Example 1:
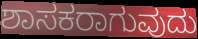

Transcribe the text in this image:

ಶಾಸಕರಾಗುವುದು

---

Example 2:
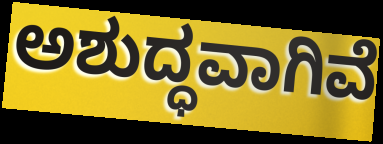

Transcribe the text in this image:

ಅಶುದ್ಧವಾಗಿವೆ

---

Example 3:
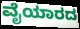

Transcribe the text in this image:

ವೈಯಾರದ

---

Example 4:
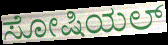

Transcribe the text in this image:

ಸೋಷಿಯಲ್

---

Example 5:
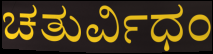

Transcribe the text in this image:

ಚತುರ್ವಿಧಂ